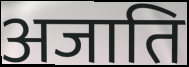
अजाति